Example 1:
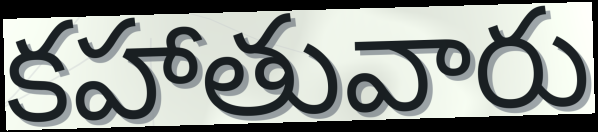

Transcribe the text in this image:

కహాతువారు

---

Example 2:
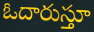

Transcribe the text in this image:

ఓదారుస్తూ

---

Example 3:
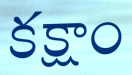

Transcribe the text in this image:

కక్షాం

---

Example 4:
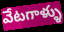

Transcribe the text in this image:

వేటగాళ్ళు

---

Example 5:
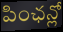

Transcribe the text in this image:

పింఛన్లో